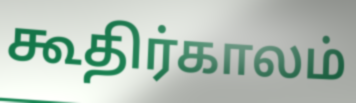
கூதிர்காலம்